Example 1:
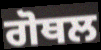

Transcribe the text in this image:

ਗੋਥਲ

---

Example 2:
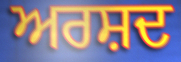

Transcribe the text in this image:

ਅਰਸ਼ਦ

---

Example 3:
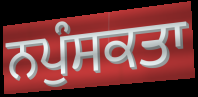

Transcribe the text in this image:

ਨਪੁੰਸਕਤਾ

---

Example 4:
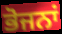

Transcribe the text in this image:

ਭੋਜਨਾਂ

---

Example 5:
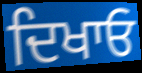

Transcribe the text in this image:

ਦਿਖਾਓ